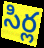
సిర్ల